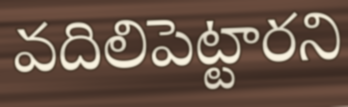
వదిలిపెట్టారని